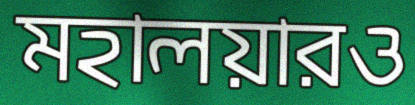
মহালয়ারও